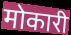
मोकारी